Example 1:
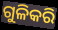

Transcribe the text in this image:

ଗୁଳିକରି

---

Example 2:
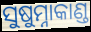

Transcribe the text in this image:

ସୁଷୁମ୍ନାକାଣ୍ଡ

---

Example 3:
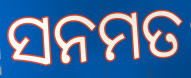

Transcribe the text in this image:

ସନମତ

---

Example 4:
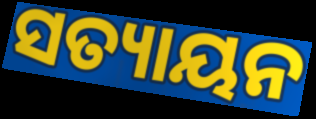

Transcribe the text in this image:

ସତ୍ୟାୟନ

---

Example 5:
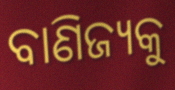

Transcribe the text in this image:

ବାଣିଜ୍ୟକୁ